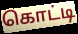
கொட்டி